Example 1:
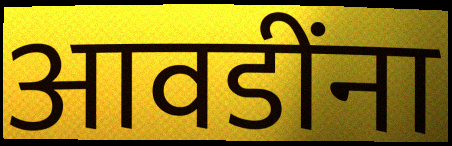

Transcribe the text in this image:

आवडींना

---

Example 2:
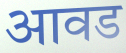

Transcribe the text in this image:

आवड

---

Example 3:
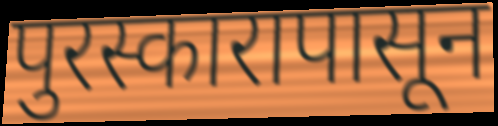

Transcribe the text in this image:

पुरस्कारापासून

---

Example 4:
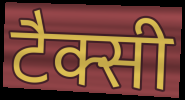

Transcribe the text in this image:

टैक्सी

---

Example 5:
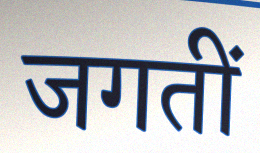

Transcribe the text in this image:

जगतीं